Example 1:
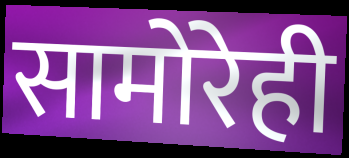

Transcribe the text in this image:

सामोरेही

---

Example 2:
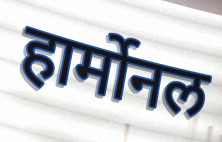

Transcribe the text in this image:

हार्मोनल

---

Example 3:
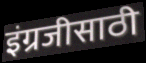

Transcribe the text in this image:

इंग्रजीसाठी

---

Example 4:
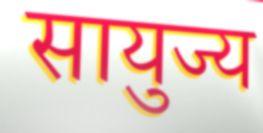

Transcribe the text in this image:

सायुज्य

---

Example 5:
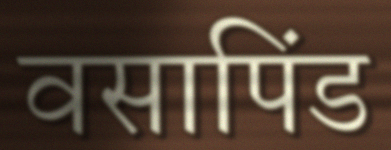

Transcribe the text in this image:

वसापिंड